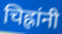
चिह्नांनी